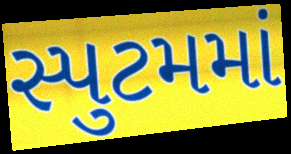
સ્પુટમમાં